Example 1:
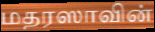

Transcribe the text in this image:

மதரஸாவின்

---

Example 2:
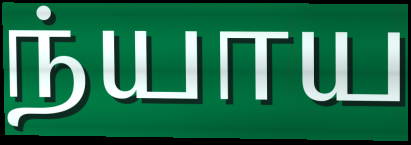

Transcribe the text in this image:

ந்யாய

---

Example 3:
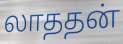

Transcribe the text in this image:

லாததன்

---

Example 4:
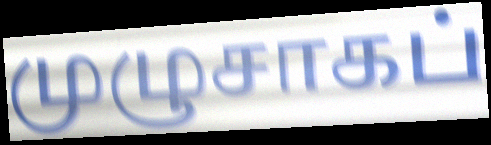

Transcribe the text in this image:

முழுசாகப்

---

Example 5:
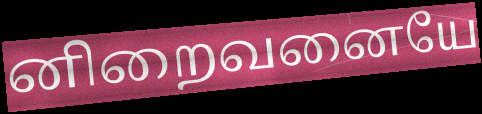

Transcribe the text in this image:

னிறைவனையே